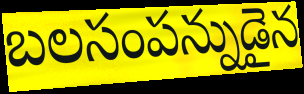
బలసంపన్నుడైన